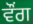
ਵੌਂਗ